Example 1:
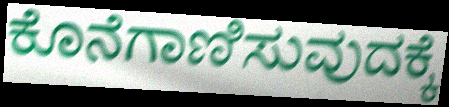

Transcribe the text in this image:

ಕೊನೆಗಾಣಿಸುವುದಕ್ಕೆ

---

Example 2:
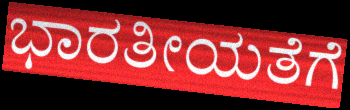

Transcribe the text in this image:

ಭಾರತೀಯತೆಗೆ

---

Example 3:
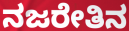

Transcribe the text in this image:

ನಜರೇತಿನ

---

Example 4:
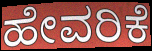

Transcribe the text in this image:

ಹೇವರಿಕೆ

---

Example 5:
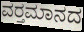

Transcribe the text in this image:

ವರ‍್ತಮಾನದ